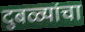
दुबळ्यांचा